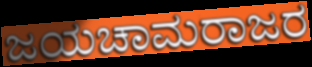
ಜಯಚಾಮರಾಜರ